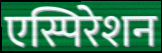
एस्पिरेशन